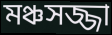
মঞ্চসজ্জা